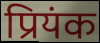
प्रियंक